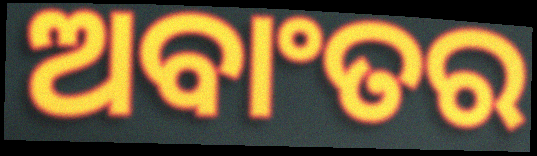
ଅବାଂତର